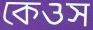
কেওস